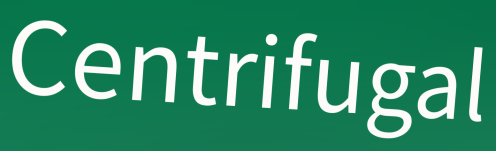
Centrifugal